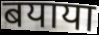
बयाया